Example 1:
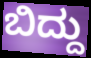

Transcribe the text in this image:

ಬಿದ್ದು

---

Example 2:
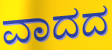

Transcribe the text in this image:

ವಾದದ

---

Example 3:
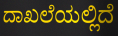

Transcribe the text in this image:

ದಾಖಲೆಯಲ್ಲಿದೆ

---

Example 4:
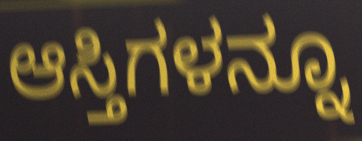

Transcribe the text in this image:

ಆಸ್ತಿಗಳನ್ನೂ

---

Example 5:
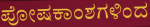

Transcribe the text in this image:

ಪೋಷಕಾಂಶಗಳಿಂದ